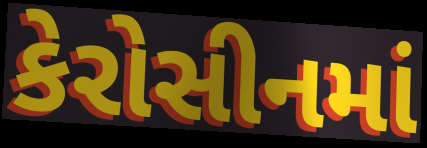
કેરોસીનમાં